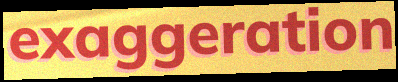
exaggeration